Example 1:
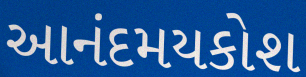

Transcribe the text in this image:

આનંદમયકોશ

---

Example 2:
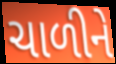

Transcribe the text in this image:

ચાળીને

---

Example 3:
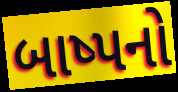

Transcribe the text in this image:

બાષ્પનો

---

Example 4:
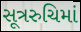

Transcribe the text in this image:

સૂત્રરુચિમાં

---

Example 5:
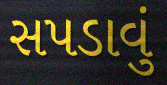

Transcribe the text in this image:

સપડાવું